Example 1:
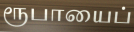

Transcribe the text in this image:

ரூபாயைப்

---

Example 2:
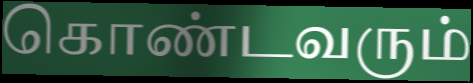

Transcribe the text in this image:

கொண்டவரும்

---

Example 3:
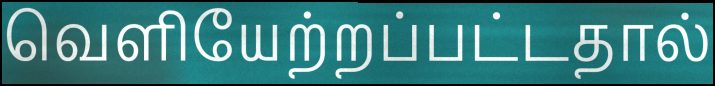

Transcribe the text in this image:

வெளியேற்றப்பட்டதால்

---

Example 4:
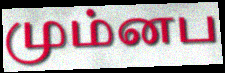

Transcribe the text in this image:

மும்னப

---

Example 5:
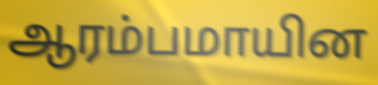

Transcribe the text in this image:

ஆரம்பமாயின